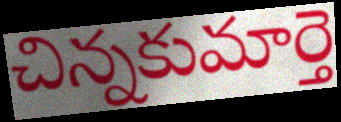
చిన్నకుమార్తె